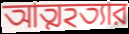
আত্মহত্যার